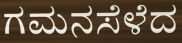
ಗಮನಸೆಳೆದ